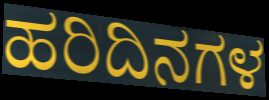
ಹರಿದಿನಗಳ